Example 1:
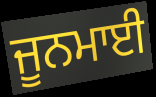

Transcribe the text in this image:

ਜੂਨਮਾਈ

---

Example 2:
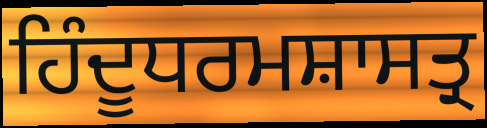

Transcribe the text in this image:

ਹਿੰਦੂਧਰਮਸ਼ਾਸਤ੍ਰ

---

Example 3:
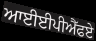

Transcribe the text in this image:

ਆਈਈਪੀਐੱਫਏ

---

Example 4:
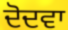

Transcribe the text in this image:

ਦੋਦਵਾ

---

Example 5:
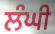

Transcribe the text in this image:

ਲੰਘੀ